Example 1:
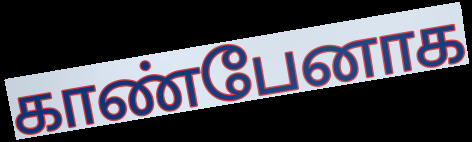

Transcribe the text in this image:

காண்பேனாக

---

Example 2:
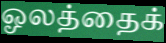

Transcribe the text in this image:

ஓலத்தைக்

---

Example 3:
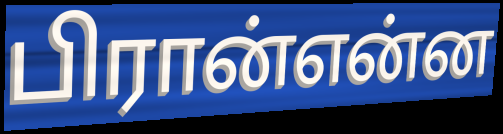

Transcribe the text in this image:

பிரான்என்ன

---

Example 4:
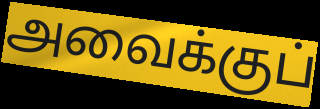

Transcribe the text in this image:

அவைக்குப்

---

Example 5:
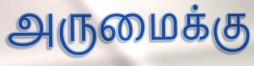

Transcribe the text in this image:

அருமைக்கு